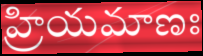
హ్రియమాణః